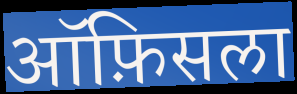
ऑफ़िसला